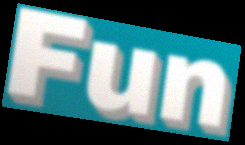
Fun